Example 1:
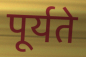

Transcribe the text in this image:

पूर्यते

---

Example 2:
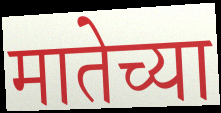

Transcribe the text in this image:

मातेच्या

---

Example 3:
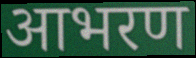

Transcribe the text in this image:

आभरण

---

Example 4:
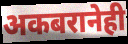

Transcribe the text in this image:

अकबरानेही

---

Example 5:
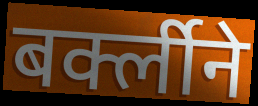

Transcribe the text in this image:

बर्क्लीने